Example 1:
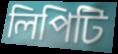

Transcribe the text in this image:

লিপিটি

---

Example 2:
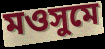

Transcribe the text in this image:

মওসুমে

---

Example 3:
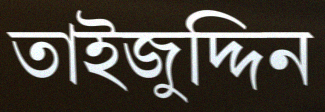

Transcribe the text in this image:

তাইজুদ্দিন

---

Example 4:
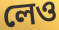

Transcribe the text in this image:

লেও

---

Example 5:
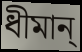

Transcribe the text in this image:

ধীমান্